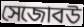
সেজোবউ